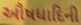
ઔષધાદિની